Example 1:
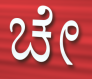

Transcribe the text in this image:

ಚೇ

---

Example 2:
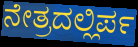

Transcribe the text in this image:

ನೇತ್ರದಲ್ಲಿರ್ಪ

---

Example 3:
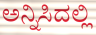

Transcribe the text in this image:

ಅನ್ನಿಸಿದಲ್ಲಿ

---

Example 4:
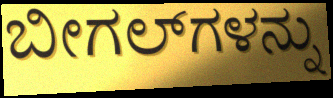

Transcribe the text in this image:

ಬೀಗಲ್‌ಗಳನ್ನು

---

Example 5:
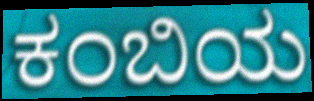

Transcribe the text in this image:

ಕಂಬಿಯ